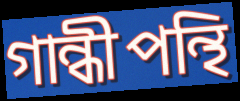
গান্ধীপন্থি